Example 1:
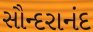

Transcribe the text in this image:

સૌન્દરાનંદ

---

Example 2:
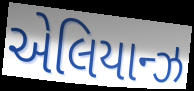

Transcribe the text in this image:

એલિયાન્ઝ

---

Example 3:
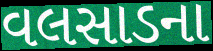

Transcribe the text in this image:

વલસાડના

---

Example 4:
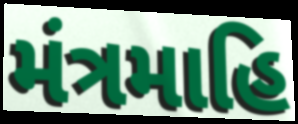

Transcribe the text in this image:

મંત્રમાહિ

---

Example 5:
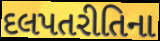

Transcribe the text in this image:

દલપતરીતિના